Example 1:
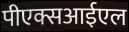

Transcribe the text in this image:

पीएक्सआईएल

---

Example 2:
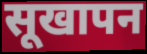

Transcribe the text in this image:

सूखापन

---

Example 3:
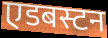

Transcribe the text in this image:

एडबस्टन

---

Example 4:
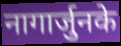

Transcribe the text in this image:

नागार्जुनके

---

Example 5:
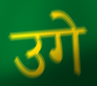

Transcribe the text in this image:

उगे